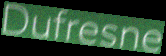
Dufresne